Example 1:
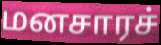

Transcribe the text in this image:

மனசாரச்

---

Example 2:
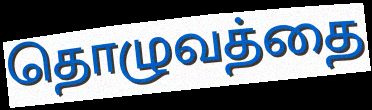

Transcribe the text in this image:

தொழுவத்தை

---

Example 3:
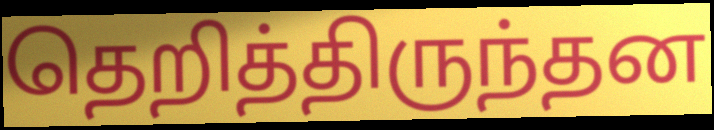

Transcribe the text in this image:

தெறித்திருந்தன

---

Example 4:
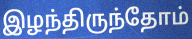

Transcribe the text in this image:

இழந்திருந்தோம்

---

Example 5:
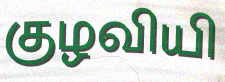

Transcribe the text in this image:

குழவியி